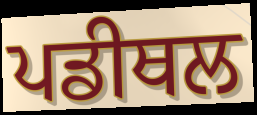
ਪਡੀਥਲ